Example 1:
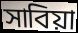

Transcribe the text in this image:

সাবিয়া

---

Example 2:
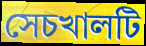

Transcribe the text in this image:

সেচখালটি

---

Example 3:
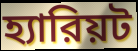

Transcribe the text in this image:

হ্যারিয়ট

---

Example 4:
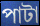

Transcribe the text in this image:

পাটা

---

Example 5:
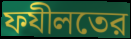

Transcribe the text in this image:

ফযীলতের